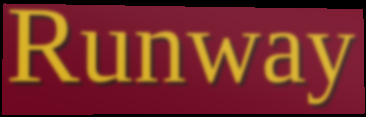
Runway